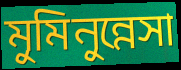
মুমিনুন্নেসা